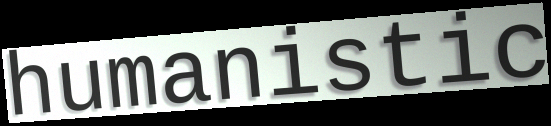
humanistic